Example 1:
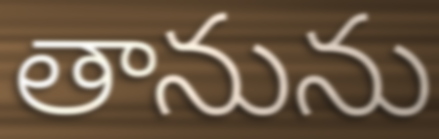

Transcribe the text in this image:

తానును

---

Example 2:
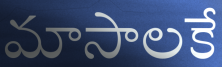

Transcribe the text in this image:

మాసాలకే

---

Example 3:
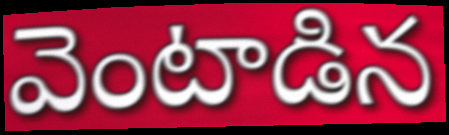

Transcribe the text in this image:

వెంటాడిన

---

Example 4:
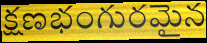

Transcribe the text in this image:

క్షణభంగురమైన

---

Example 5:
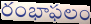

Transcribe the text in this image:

రంభాఫలం